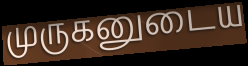
முருகனுடைய